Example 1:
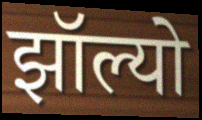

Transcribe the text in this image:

झॉल्यो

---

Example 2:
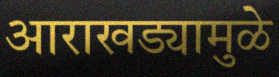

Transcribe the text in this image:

आराखड्यामुळे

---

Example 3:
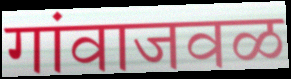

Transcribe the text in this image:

गांवाजवळ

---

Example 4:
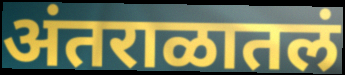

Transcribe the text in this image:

अंतराळातलं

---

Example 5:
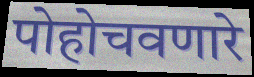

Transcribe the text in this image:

पोहोचवणारे